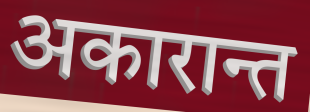
अकारान्त